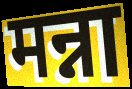
मन्ना